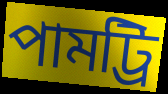
পামট্রি